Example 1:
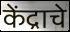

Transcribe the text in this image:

केंद्राचे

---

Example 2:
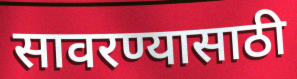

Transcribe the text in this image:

सावरण्यासाठी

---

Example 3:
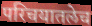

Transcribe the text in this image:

परिचयातलेच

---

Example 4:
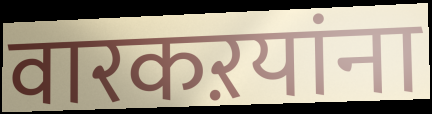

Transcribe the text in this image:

वारकऱयांना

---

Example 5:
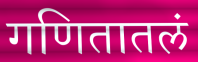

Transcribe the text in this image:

गणितातलं